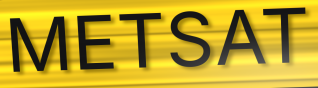
METSAT